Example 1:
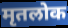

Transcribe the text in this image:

मृतलोक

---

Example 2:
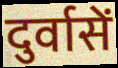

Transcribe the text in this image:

दुर्वासें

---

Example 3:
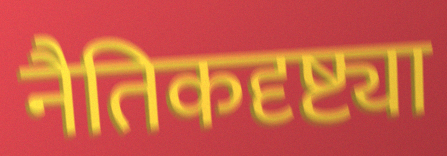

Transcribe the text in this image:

नैतिकदृष्ट्या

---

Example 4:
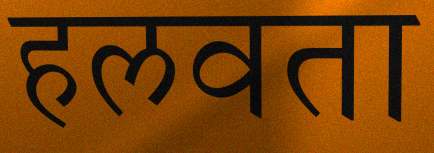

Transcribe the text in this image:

हलवता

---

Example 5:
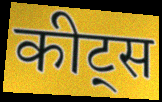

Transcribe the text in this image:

कीट्‌स